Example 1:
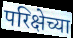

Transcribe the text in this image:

परिक्षेच्या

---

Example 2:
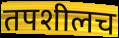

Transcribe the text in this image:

तपशीलच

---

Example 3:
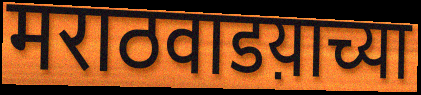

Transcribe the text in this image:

मराठवाडय़ाच्या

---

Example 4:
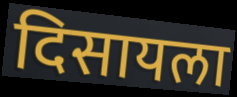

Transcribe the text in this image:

दिसायला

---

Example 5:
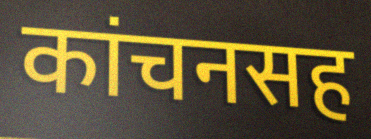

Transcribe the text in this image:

कांचनसह